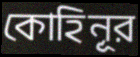
কোহিনূর